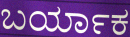
ಬರ್ಯಾಕ